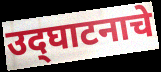
उद्‌घाटनाचे